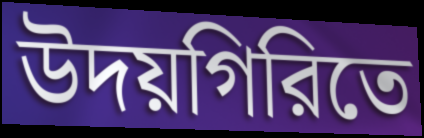
উদয়গিরিতে